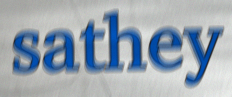
sathey